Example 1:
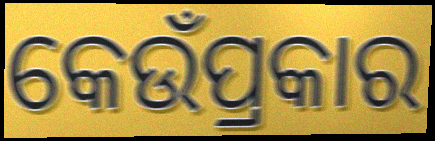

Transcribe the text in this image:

କେଉଁପ୍ରକାର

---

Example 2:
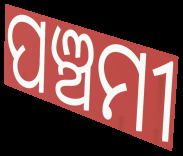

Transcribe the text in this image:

ପଞ୍ଚମୀ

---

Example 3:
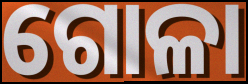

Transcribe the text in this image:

ଗୋଳା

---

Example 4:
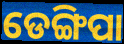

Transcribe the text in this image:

ଡେଙ୍ଗିପା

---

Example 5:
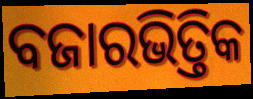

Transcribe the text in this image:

ବଜାରଭିତ୍ତିକ